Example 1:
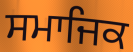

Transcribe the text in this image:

ਸਮਾਜਿਕ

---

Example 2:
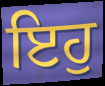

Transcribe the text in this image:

ਇਹੁ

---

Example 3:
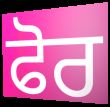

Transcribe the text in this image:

ਫੋਰ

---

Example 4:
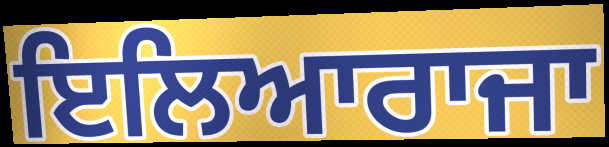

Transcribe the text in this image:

ਇਲਿਆਰਾਜਾ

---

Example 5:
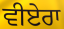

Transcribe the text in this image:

ਵੀਏਰਾ